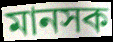
মানসক